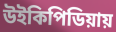
উইকিপিডিয়ায়